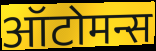
ऑटोमन्स